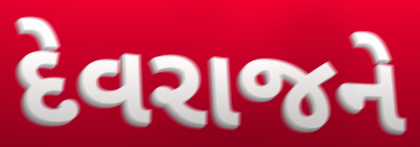
દેવરાજને